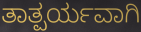
ತಾತ್ಪರ್ಯವಾಗಿ